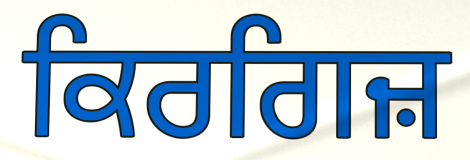
ਕਿਰਗਿਜ਼